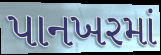
પાનખરમાં